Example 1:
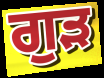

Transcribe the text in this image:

ਗੁੜ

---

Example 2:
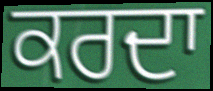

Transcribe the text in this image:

ਕਰਦਾ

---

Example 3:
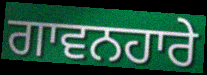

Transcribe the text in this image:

ਗਾਵਨਹਾਰੇ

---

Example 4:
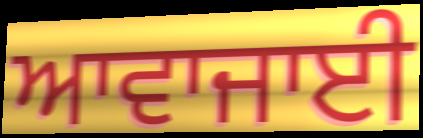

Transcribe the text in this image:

ਆਵਾਜਾਈ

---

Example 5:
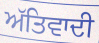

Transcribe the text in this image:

ਅੱਤਿਵਾਦੀ